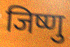
जिष्णु